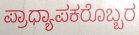
ಪ್ರಾಧ್ಯಾಪಕರೊಬ್ಬರ